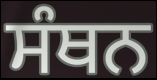
ਸੰਥਨ